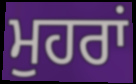
ਮੁਹਰਾਂ